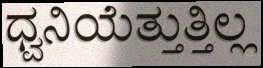
ಧ್ವನಿಯೆತ್ತುತ್ತಿಲ್ಲ